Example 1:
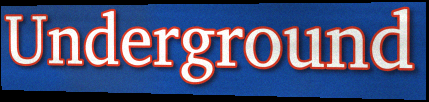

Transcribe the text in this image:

Underground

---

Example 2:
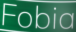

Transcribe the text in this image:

Fobia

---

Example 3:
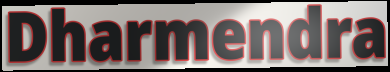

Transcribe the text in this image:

Dharmendra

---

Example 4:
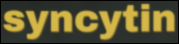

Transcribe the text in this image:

syncytin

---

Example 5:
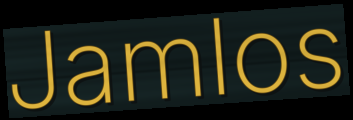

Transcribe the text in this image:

Jamlos